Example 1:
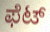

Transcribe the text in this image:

ಫೆಟ್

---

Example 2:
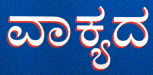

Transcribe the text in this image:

ವಾಕ್ಯದ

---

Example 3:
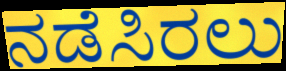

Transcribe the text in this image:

ನಡೆಸಿರಲು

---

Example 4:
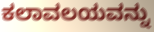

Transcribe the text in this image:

ಕಲಾವಲಯವನ್ನು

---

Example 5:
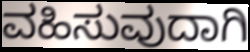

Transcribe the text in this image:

ವಹಿಸುವುದಾಗಿ